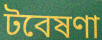
টবেষণা